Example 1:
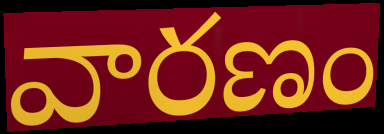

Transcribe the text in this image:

వారణం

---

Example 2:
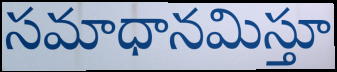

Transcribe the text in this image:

సమాధానమిస్తూ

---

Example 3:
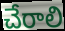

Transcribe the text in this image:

చేరాలి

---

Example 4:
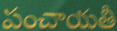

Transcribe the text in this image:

పంచాయతీ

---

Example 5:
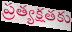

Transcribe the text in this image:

ప్రత్యక్షతకు